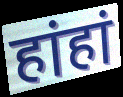
हांहां